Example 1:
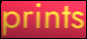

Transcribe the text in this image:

prints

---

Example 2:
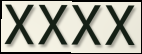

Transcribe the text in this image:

XXXX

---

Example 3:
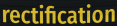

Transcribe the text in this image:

rectification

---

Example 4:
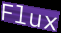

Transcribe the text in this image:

Flux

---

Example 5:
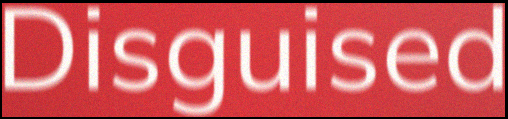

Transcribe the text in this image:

Disguised